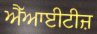
ਐੱਆਈਟੀਜ਼